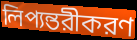
লিপ্যন্তরীকরণ